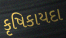
કૃષિકાયદા